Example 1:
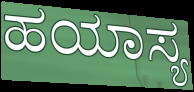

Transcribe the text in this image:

ಹಯಾಸ್ಯ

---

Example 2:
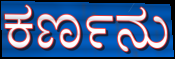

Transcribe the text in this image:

ಕರ್ಣನು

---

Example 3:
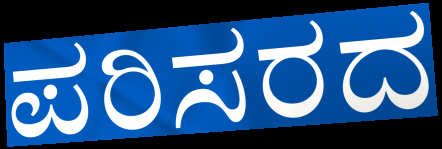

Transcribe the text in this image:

ಪರಿಸರದ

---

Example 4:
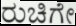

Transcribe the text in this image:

ರುಚಿಗೇ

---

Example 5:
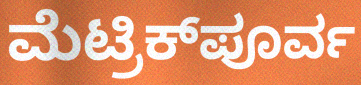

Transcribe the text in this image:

ಮೆಟ್ರಿಕ್‌ಪೂರ್ವ